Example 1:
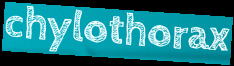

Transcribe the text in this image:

chylothorax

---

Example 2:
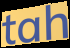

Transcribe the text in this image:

tah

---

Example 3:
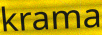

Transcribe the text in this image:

krama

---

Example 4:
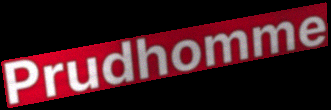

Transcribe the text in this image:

Prudhomme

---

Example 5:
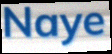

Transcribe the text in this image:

Naye